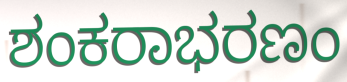
ಶಂಕರಾಭರಣಂ